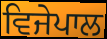
ਵਿਜੇਪਾਲ